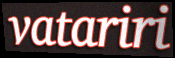
vatariri